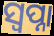
ସ୍ୱପ୍ନା